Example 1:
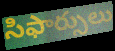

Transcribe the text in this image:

సిఫార్సులు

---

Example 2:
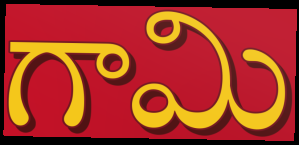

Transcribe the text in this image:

గామి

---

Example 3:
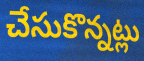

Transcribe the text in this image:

చేసుకొన్నట్లు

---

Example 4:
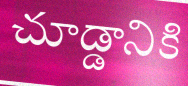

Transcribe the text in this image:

చూడ్డానికి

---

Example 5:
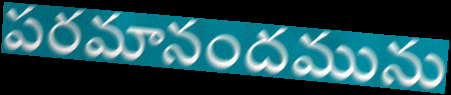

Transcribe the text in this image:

పరమానందమును